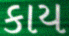
કાય